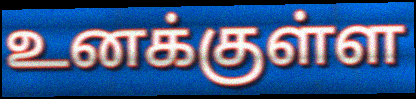
உனக்குள்ள